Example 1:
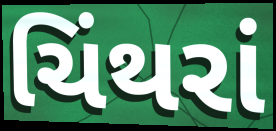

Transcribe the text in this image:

ચિંથરાં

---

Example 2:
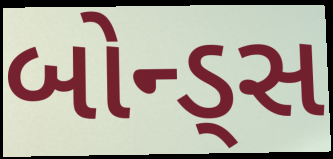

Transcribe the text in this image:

બોન્ડ્સ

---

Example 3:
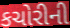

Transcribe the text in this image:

કચોરીની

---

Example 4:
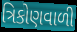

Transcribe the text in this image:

ત્રિકોણવાળી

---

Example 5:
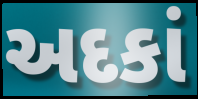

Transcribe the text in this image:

અદકાં